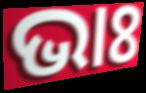
ଭାଃ